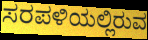
ಸರಪಳಿಯಲ್ಲಿರುವ